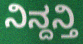
ನಿನ್ದನ್ತಿ